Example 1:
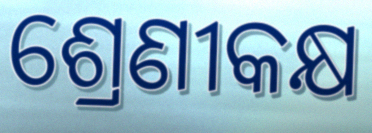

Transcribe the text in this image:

ଶ୍ରେଣୀକକ୍ଷ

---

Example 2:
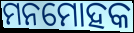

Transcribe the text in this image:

ମନମୋହକ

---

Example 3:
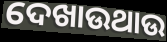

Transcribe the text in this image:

ଦେଖାଉଥାଉ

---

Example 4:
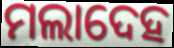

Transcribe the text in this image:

ମଲାଦେହ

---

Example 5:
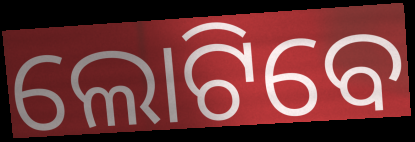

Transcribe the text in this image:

ଲୋଟିବେ